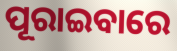
ପୂରାଇବାରେ